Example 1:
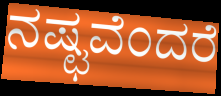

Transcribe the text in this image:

ನಷ್ಟವೆಂದರೆ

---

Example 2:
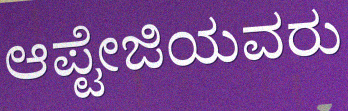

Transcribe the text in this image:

ಆಪ್ಟೇಜಿಯವರು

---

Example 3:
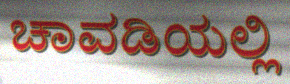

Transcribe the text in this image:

ಚಾವಡಿಯಲ್ಲಿ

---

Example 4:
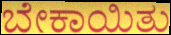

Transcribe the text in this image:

ಬೇಕಾಯಿತು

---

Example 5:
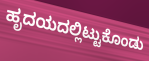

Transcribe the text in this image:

ಹೃದಯದಲ್ಲಿಟ್ಟುಕೊಂಡು